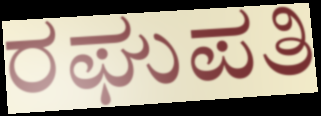
ರಘುಪತಿ